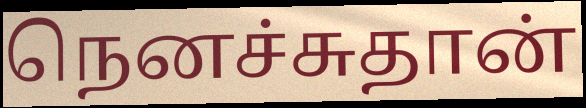
நெனச்சுதான்